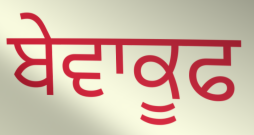
ਬੇਵਾਕੂਫ